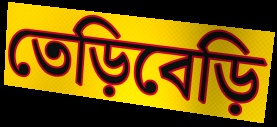
তেড়িবেড়ি